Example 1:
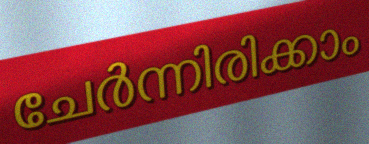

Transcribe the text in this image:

ചേർന്നിരിക്കാം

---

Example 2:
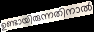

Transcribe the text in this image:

ഉണ്ടായിരുന്നതിനാൽ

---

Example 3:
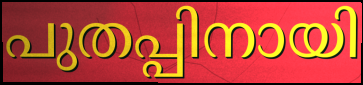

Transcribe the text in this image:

പുതപ്പിനായി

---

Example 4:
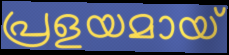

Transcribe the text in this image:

പ്രളയമായ്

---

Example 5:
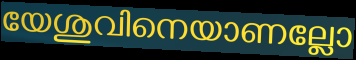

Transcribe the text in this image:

യേശുവിനെയാണല്ലോ